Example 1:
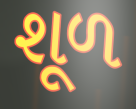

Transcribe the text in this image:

શૂળ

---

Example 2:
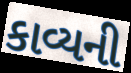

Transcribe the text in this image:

કાવ્યની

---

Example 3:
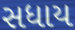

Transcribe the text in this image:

સધાય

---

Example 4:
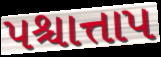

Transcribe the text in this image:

પશ્ચાત્તાપ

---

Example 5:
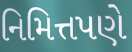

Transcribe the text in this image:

નિમિત્તપણે